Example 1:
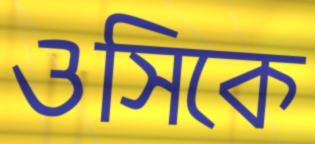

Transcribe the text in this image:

ওসিকে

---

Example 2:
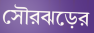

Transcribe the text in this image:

সৌরঝড়ের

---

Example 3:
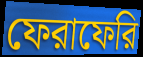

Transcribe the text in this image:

ফেরাফেরি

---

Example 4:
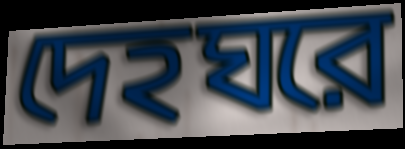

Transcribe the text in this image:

দেহঘরে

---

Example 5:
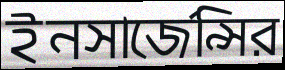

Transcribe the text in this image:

ইনসার্জেন্সির